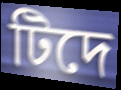
টিদে